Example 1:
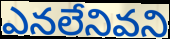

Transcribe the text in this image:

ఎనలేనివని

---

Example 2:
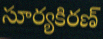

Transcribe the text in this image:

సూర్యకిరణ్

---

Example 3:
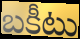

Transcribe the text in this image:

బకీటు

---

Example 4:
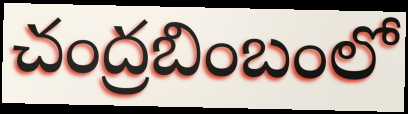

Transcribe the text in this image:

చంద్రబింబంలో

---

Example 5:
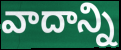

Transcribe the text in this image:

వాదాన్ని